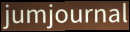
jumjournal